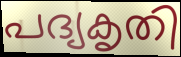
പദ്യകൃതി